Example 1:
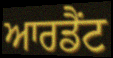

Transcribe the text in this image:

ਆਰਡੈਂਟ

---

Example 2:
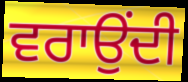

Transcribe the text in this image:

ਵਰਾਉਂਦੀ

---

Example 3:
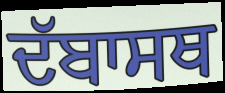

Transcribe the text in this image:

ਦੱਬਾਸਥ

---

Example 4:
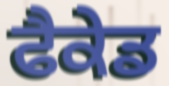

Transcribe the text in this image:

ਫੈਕੇਡ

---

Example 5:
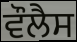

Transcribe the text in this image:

ਵੌਲੈਸ